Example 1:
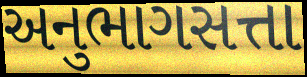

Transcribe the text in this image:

અનુભાગસત્તા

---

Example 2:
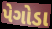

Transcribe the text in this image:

પેગોડા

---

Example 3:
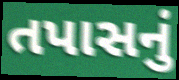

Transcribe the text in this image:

તપાસનું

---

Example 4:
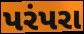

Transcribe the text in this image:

પરંપરા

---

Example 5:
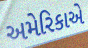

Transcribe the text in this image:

અમેરિકાએ